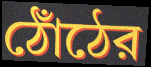
ঠোঁঠের